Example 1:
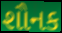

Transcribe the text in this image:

શૌનક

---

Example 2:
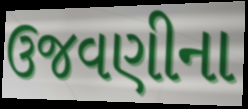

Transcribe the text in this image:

ઉજવણીના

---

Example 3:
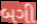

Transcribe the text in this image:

બગી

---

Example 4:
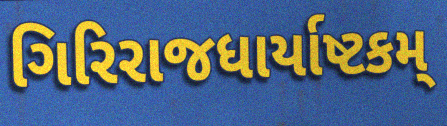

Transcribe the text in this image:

ગિરિરાજધાર્યાષ્ટકમ્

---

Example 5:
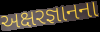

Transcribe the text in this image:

અક્ષરજ્ઞાનના